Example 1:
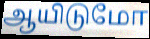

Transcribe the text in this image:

ஆயிடுமோ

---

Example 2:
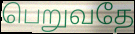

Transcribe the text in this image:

பெறுவதே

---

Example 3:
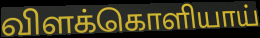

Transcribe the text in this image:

விளக்கொளியாய்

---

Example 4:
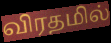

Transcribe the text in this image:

விரதமில்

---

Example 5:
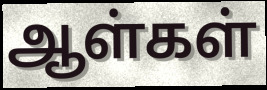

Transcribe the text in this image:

ஆள்கள்